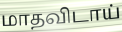
மாதவிடாய்